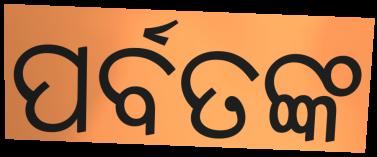
ପର୍ବତଙ୍କ